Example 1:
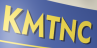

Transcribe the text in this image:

KMTNC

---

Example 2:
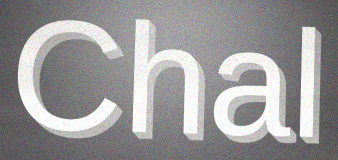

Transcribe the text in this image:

Chal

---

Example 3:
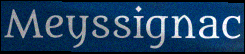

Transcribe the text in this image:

Meyssignac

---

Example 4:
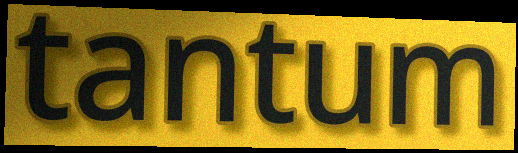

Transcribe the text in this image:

tantum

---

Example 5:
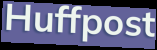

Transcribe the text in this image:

Huffpost